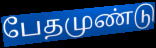
பேதமுண்டு